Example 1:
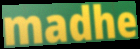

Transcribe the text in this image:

madhe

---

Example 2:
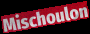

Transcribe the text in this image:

Mischoulon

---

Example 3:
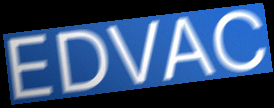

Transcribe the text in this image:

EDVAC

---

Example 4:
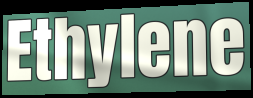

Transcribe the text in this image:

Ethylene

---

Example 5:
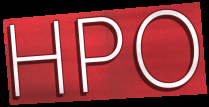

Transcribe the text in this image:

HPO